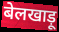
बेलखाड़ू